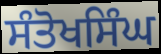
ਸੰਤੋਖਸਿੰਘ